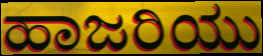
ಹಾಜರಿಯು